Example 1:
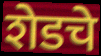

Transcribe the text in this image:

शेडचे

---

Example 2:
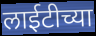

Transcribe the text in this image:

लाईटीच्या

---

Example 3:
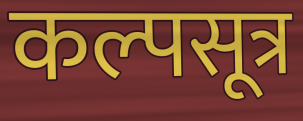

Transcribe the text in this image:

कल्पसूत्र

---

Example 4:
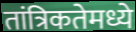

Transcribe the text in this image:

तांत्रिकतेमध्ये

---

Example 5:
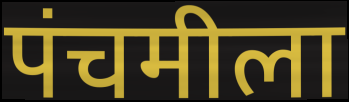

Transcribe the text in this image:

पंचमीला